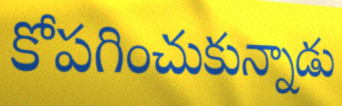
కోపగించుకున్నాడు